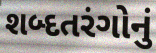
શબ્દતરંગોનું